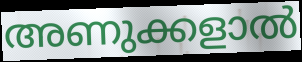
അണുക്കളാൽ